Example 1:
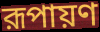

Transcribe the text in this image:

রূপায়ণ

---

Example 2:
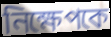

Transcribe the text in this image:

নিক্ষেপকে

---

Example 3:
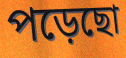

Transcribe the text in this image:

পড়েছো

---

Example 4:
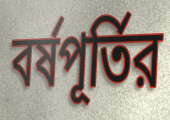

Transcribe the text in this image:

বর্ষপূর্তির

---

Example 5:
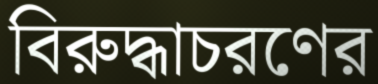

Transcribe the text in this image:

বিরুদ্ধাচরণের